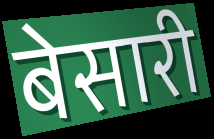
बेसारी